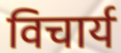
विचार्य